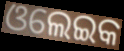
ଓଲେଇକ